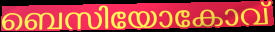
ബെസിയോകോവ്